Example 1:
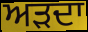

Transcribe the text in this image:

ਅੜਦਾ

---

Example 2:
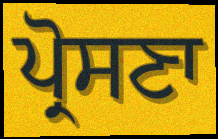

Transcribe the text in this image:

ਪ੍ਰੋਸਣਾ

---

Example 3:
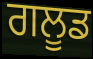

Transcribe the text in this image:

ਗਲੂਡ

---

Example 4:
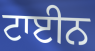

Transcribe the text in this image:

ਟਾਈਨ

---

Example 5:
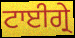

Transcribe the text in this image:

ਟਾਈਗ੍ਰੇ